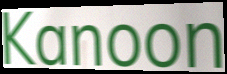
Kanoon